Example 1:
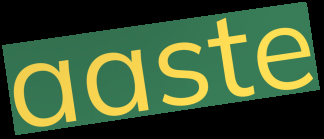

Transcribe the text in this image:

aaste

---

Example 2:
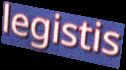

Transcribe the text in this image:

legistis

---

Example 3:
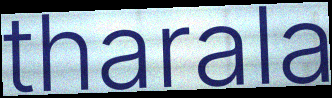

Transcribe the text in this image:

tharala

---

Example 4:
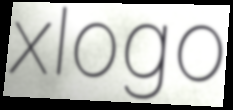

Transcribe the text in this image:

xlogo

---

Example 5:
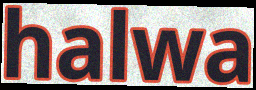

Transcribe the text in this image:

halwa